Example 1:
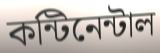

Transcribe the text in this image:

কন্টিনেন্টাল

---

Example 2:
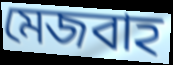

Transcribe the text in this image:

মেজবাহ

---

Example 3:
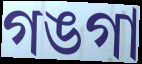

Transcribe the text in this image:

গঙগা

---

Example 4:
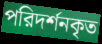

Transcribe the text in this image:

পরিদর্শনকৃত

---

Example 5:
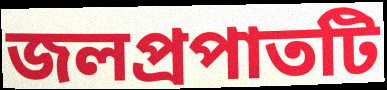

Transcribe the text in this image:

জলপ্রপাতটি